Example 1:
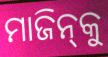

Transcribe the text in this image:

ମାଜିନ୍‌କୁ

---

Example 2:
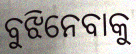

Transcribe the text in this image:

ବୁଝିନେବାକୁ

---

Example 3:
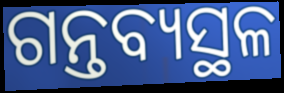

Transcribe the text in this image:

ଗନ୍ତବ୍ୟସ୍ଥଳ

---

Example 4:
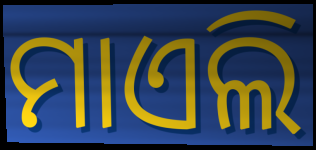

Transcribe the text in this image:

ମାଏଲି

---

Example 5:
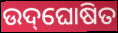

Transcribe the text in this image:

ଉଦ୍‌ଘୋଷିତ